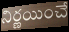
నిర్ణయించే